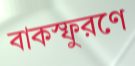
বাকস্ফুরণে